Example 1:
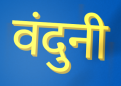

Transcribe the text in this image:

वंदुनी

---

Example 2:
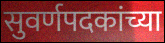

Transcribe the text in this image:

सुवर्णपदकांच्या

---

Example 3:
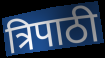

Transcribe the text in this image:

त्रिपाठी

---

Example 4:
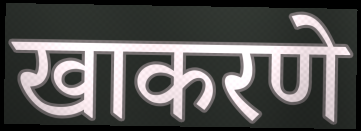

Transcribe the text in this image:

खाकरणे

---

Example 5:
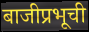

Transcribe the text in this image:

बाजीप्रभूची